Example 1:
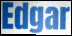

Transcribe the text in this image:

Edgar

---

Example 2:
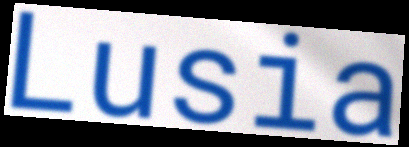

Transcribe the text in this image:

Lusia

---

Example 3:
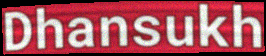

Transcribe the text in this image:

Dhansukh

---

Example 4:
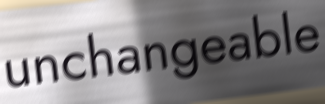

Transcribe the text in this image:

unchangeable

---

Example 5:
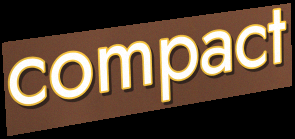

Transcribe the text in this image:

compact